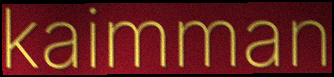
kaimman